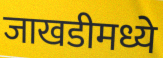
जाखडीमध्ये